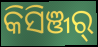
କିସିଞ୍ଜର୍